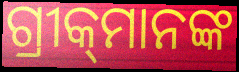
ଗ୍ରୀକ୍‌ମାନଙ୍କ